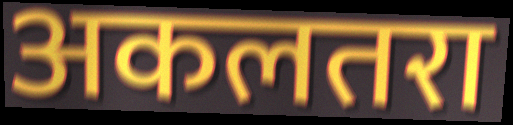
अकलतरा